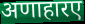
अणाहारए